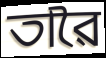
তাৱৈ